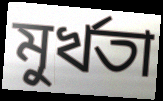
মুর্খতা